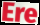
Ere